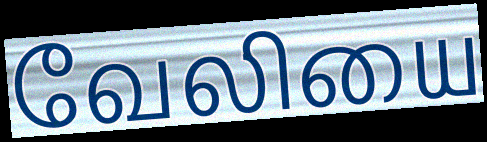
வேலியை